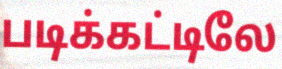
படிக்கட்டிலே